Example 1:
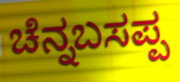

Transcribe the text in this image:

ಚೆನ್ನಬಸಪ್ಪ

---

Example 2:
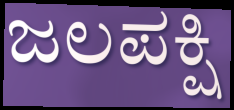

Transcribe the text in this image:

ಜಲಪಕ್ಷಿ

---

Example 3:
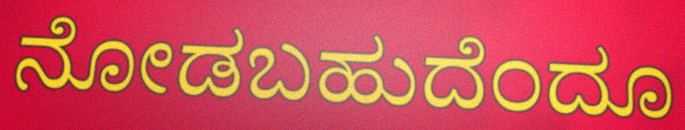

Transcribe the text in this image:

ನೋಡಬಹುದೆಂದೂ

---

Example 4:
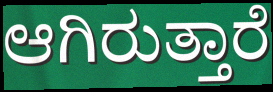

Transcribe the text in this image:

ಆಗಿರುತ್ತಾರೆ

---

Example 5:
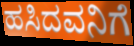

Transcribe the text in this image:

ಹಸಿದವನಿಗೆ